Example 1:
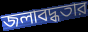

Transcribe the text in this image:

জলাবদ্ধতার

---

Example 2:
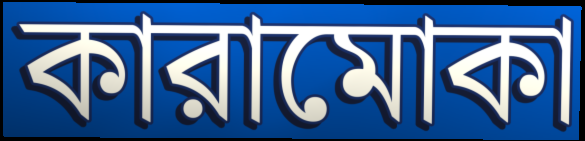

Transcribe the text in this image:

কারামোকা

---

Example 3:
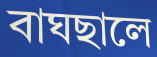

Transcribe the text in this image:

বাঘছালে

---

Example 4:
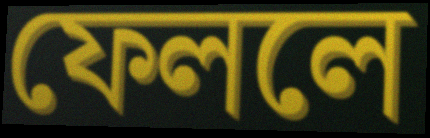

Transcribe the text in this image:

ফেললে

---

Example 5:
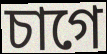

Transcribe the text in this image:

চাগে